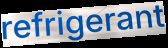
refrigerant